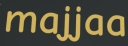
majjaa